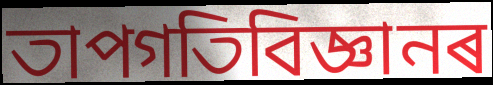
তাপগতিবিজ্ঞানৰ